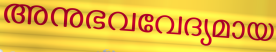
അനുഭവവേദ്യമായ